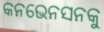
କନଭେନସନକୁ